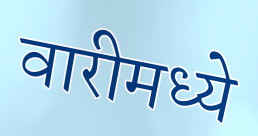
वारीमध्ये